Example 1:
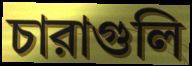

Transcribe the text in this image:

চারাগুলি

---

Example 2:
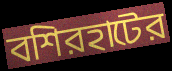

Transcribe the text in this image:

বশিরহাটের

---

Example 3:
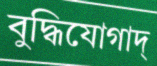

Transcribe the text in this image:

বুদ্ধিযোগাদ্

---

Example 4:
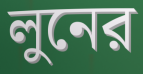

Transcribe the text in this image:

লুনের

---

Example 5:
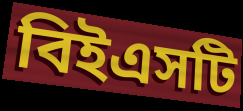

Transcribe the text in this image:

বিইএসটি